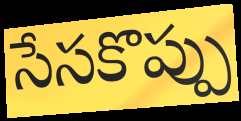
సేసకొప్పు